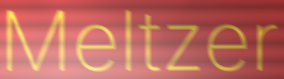
Meltzer